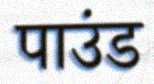
पाउंड